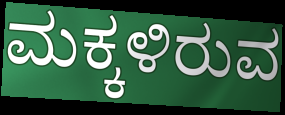
ಮಕ್ಕಳಿರುವ